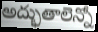
అద్భుతాలెన్నో